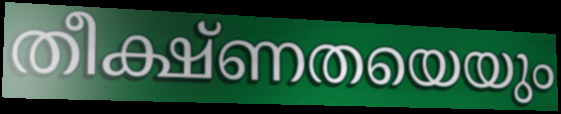
തീക്ഷ്ണതയെയും